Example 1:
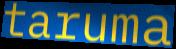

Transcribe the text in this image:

taruma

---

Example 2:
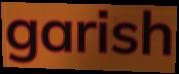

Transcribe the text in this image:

garish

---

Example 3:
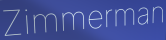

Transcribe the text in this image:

Zimmerman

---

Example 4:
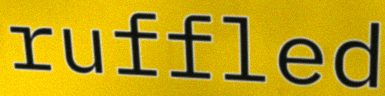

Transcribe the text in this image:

ruffled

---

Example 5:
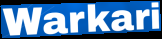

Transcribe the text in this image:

Warkari